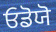
ਓਡੋਯੋ